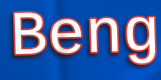
Beng